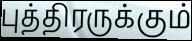
புத்திரருக்கும்